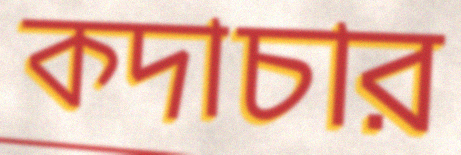
কদাচার